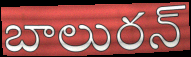
బాలురన్